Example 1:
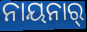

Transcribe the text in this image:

ନାୟନାର୍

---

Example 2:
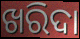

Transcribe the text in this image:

ଖରିଦା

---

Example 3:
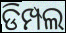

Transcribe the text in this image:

ଡିମ୍ପଲ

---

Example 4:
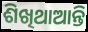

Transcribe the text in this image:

ଶିଖିଥାଆନ୍ତି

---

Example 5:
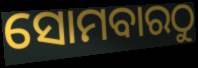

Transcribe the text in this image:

ସୋମବାରଠୁ